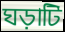
ঘড়াটি